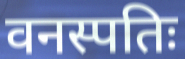
वनस्पतिः